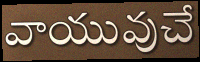
వాయువుచే